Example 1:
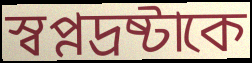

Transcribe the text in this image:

স্বপ্নদ্রষ্টাকে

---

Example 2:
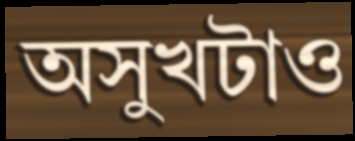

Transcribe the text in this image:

অসুখটাও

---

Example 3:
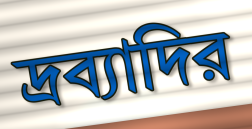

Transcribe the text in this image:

দ্রব্যাদির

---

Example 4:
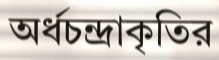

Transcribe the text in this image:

অর্ধচন্দ্রাকৃতির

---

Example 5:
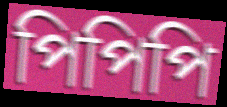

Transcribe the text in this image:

পিপিপি